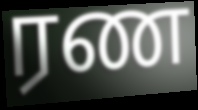
ரண